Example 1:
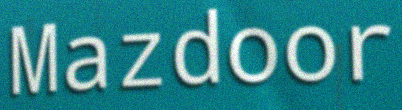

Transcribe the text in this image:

Mazdoor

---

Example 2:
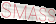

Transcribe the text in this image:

SMASS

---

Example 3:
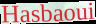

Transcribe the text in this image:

Hasbaoui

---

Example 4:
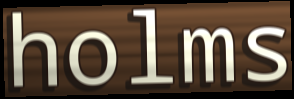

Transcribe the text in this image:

holms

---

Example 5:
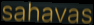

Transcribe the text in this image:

sahavas